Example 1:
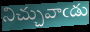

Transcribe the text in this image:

నిచ్చువాఁడు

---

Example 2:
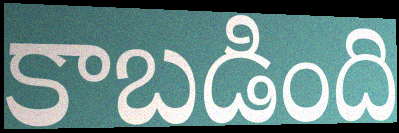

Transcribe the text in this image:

కాబడింది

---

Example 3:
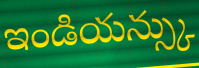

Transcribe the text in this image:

ఇండియన్స్కు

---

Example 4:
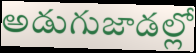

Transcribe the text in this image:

అడుగుజాడల్లో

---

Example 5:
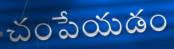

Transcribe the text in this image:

చంపేయడం